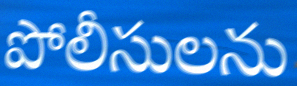
పోలీసులను